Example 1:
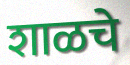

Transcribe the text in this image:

शाळचे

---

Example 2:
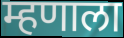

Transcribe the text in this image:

म्‍हणाला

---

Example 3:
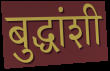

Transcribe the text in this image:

बुद्धांशी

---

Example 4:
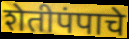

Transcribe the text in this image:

शेतीपंपाचे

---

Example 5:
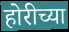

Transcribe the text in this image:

होरीच्या